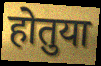
होतुया